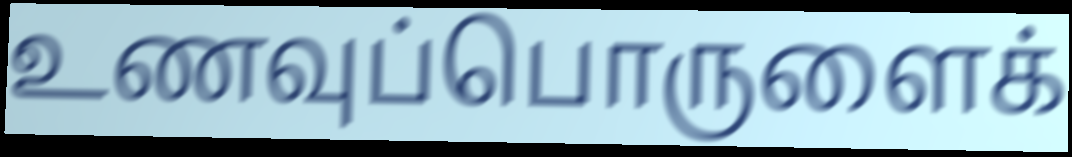
உணவுப்பொருளைக்